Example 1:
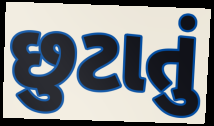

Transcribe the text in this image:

છુટાતું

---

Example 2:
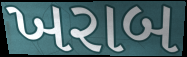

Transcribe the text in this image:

ખરાબ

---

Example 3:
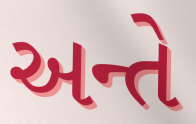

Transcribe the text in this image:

અન્તે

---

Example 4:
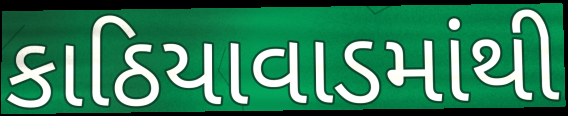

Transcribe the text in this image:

કાઠિયાવાડમાંથી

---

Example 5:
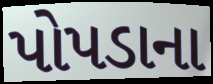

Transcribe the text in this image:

પોપડાના